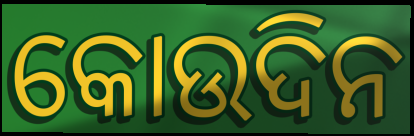
କୋଉଦିନ